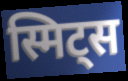
स्मिट्स